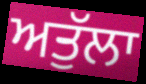
ਅਤੁੱਲਾ